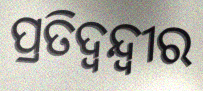
ପ୍ରତିଦ୍ବନ୍ଦ୍ବୀର